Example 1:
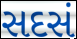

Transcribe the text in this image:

સદસં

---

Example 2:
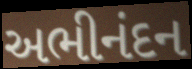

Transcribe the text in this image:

અભીનંદન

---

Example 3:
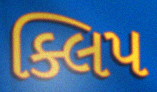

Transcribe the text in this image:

ક્લિપ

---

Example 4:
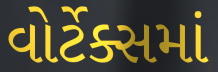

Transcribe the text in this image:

વોર્ટેક્સમાં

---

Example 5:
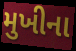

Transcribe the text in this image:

મુખીના